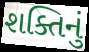
શક્તિનું